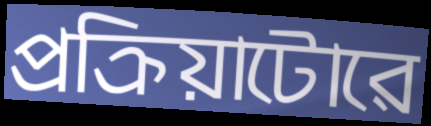
প্ৰক্ৰিয়াটোৱে